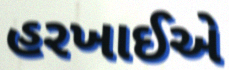
હરખાઈએ